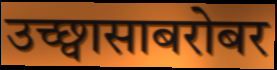
उच्छ्वासाबरोबर